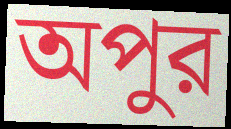
অপুর